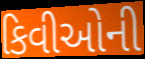
કિવીઓની